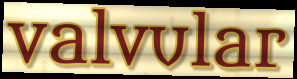
valvular